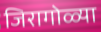
जिरागोळ्या